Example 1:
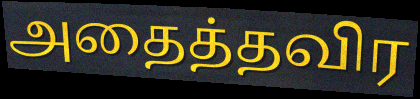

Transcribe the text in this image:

அதைத்தவிர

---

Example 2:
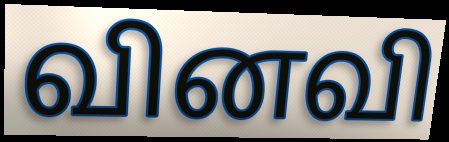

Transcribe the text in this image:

வினவி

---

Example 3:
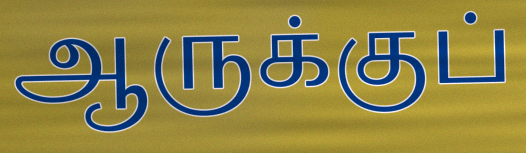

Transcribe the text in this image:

ஆருக்குப்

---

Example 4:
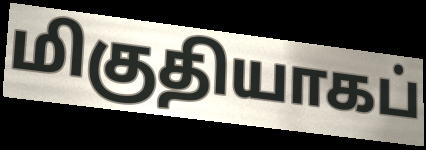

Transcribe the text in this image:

மிகுதியாகப்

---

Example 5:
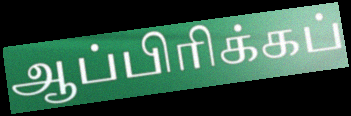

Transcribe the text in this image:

ஆப்பிரிக்கப்